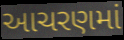
આચરણમાં